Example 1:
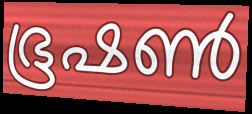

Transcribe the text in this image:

ഭൂഷൺ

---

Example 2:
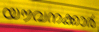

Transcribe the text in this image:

യൗവനക്കാർ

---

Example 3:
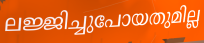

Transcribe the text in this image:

ലജ്ജിച്ചുപോയതുമില്ല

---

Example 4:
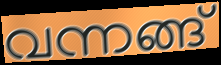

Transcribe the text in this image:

വന്നങ്ങ്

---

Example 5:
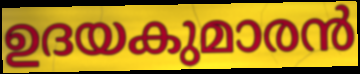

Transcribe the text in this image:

ഉദയകുമാരൻ